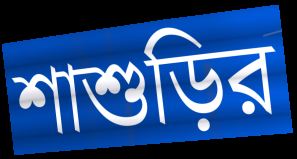
শাশুড়ির